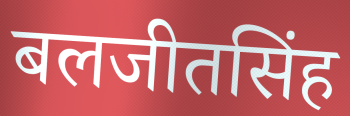
बलजीतसिंह